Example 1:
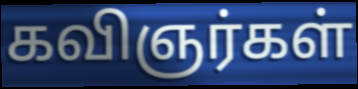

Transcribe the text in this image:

கவிஞர்கள்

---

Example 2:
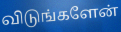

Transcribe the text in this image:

விடுங்களேன்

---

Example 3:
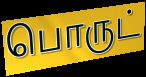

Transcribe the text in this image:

பொருட்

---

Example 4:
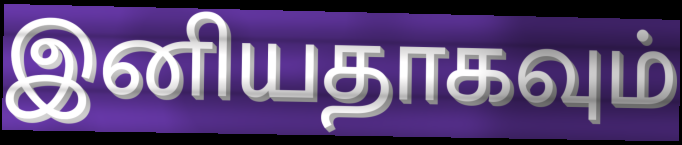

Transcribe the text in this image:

இனியதாகவும்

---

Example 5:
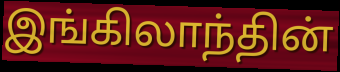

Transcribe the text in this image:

இங்கிலாந்தின்